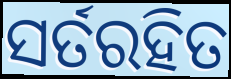
ସର୍ତରହିତ